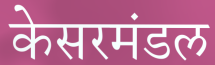
केसरमंडल